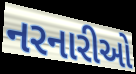
નરનારીઓ